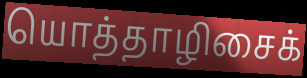
யொத்தாழிசைக்